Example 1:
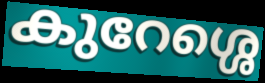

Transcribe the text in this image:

കുറേശ്ശെ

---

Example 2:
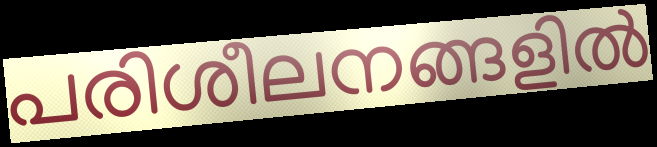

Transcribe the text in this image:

പരിശീലനങ്ങളിൽ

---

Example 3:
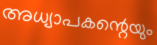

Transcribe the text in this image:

അധ്യാപകന്റെയും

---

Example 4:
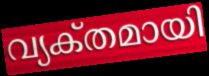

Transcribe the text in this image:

വ്യക്‌തമായി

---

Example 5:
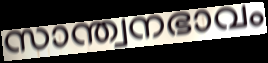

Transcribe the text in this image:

സാന്ത്വനഭാവം